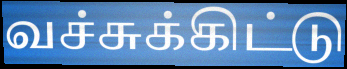
வச்சுக்கிட்டு